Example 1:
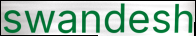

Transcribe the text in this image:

swandesh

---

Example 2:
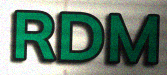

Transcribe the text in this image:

RDM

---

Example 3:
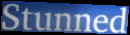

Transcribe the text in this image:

Stunned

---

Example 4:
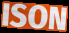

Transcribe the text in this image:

ISON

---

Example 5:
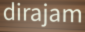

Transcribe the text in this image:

dirajam